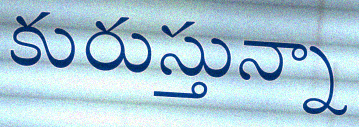
కురుస్తున్నా